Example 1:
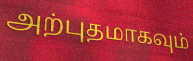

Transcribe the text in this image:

அற்புதமாகவும்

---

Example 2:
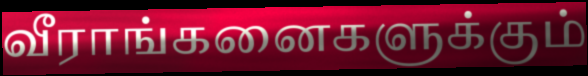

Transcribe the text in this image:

வீராங்கனைகளுக்கும்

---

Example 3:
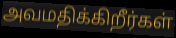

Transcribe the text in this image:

அவமதிக்கிறீர்கள்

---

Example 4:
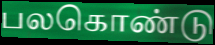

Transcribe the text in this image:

பலகொண்டு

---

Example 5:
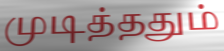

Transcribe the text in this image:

முடித்ததும்